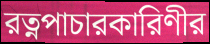
রত্নপাচারকারিণীর